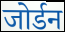
जोर्डन